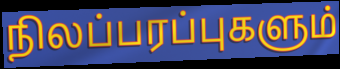
நிலப்பரப்புகளும்